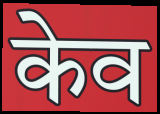
केव